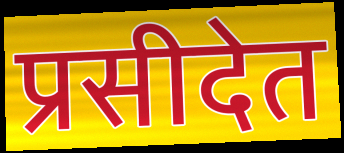
प्रसीदेत